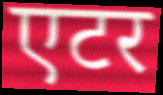
एटर